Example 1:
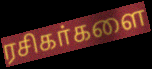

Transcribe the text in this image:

ரசிகர்களை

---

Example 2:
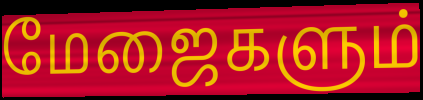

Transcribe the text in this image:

மேஜைகளும்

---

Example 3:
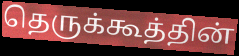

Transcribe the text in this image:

தெருக்கூத்தின்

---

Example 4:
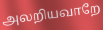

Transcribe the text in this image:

அலறியவாறே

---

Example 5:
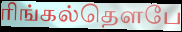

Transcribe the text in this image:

ரிங்கல்தௌபே